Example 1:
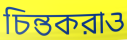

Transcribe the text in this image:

চিন্তকরাও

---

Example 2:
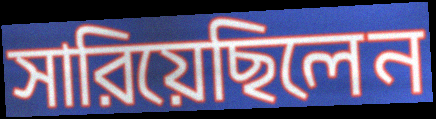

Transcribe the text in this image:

সারিয়েছিলেন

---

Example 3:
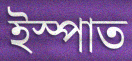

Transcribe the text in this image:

ইস্পাত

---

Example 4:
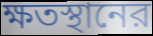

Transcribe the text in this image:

ক্ষতস্থানের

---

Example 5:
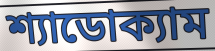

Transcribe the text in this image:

শ্যাডোক্যাম